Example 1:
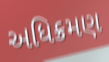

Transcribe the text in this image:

અધિક્રમણ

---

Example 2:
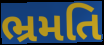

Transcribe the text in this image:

ભ્રમતિ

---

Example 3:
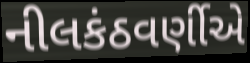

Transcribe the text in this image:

નીલકંઠવર્ણીએ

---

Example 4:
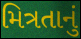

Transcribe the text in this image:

મિત્રતાનું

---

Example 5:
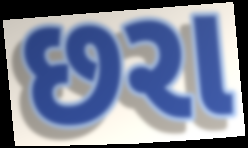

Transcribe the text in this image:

છરા